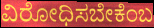
ವಿರೋಧಿಸಬೇಕೆಂಬ